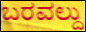
ಬರವಲ್ದು